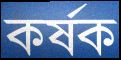
কর্ষক